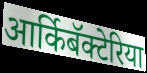
आर्किबॅक्टेरिया